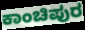
ಕಾಂಚಿಪುರ